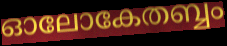
ഓലോകേതബ്ബം